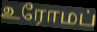
உரோமப்